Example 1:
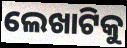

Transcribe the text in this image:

ଲେଖାଟିକୁ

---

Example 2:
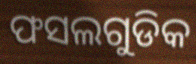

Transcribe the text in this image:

ଫସଲଗୁଡିକ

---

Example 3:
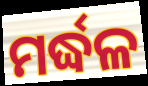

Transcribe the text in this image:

ମର୍ଦ୍ଧଳ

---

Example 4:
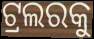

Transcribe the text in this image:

ଟ୍ରଲରକୁ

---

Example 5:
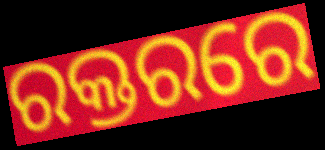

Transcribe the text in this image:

ରକ୍ତରରେ